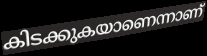
കിടക്കുകയാണെന്നാണ്